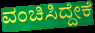
ವಂಚಿಸಿದ್ದೇಕೆ